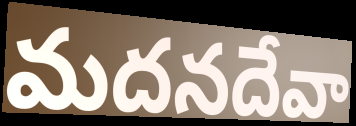
మదనదేవా